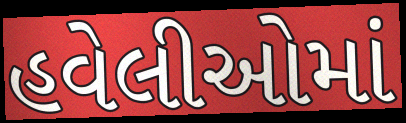
હવેલીઓમાં